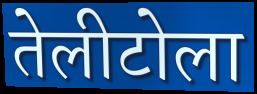
तेलीटोला